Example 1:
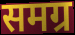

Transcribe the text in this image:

समग्र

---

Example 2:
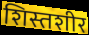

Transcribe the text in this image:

शिस्तशीर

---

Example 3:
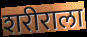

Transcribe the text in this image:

शरीराला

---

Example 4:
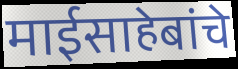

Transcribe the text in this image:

माईसाहेबांचे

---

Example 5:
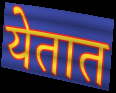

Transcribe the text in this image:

येतात